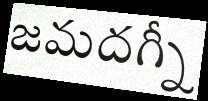
జమదగ్నీ